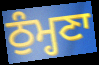
ਠੁੰਮ੍ਹਣਾ